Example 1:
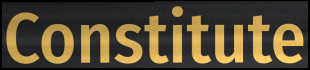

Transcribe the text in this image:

Constitute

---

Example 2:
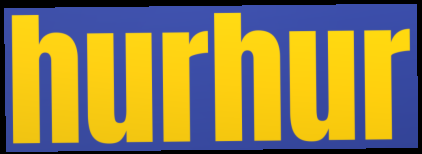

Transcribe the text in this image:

hurhur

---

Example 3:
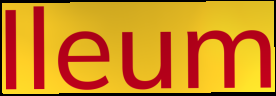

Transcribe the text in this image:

Ileum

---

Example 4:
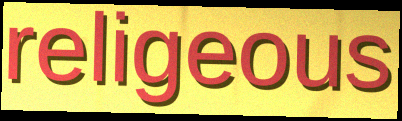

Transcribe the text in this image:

religeous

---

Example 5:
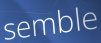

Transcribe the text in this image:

semble